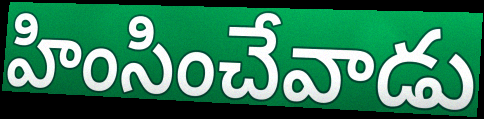
హింసించేవాడు